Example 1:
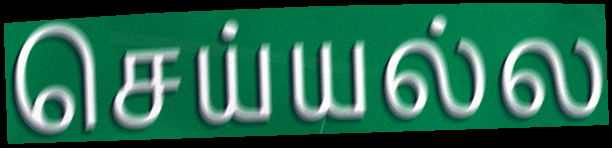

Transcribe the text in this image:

செய்யல்ல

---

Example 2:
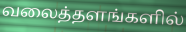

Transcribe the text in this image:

வலைத்தளங்களில்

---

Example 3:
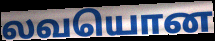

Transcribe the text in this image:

லவயொன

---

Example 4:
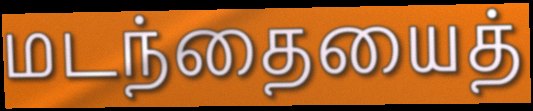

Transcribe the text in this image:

மடந்தையைத்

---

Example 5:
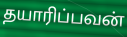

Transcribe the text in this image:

தயாரிப்பவன்